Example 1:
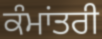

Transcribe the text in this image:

ਕੰਮਾਂਤਰੀ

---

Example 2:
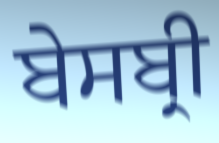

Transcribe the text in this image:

ਬੇਸਬ੍ਰੀ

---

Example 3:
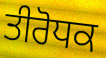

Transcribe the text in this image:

ਤੀਰੋਧਕ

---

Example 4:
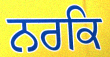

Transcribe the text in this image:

ਨਰਕਿ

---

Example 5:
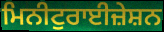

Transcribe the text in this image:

ਮਿਨੀਟੁਰਾਈਜ਼ੇਸ਼ਨ